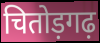
चितोड़गढ़